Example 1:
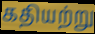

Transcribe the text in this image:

கதியற்று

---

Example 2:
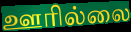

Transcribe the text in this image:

ஊரில்லை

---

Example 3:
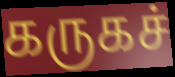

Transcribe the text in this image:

கருகச்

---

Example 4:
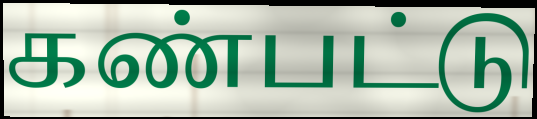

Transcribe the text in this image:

கண்பட்டு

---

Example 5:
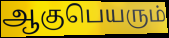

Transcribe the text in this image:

ஆகுபெயரும்